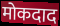
मोकदाद